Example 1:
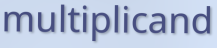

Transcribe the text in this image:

multiplicand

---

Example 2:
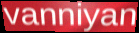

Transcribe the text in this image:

vanniyan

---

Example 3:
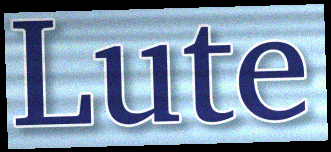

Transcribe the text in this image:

Lute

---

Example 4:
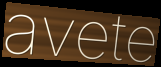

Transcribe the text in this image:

avete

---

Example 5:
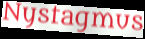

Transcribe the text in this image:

Nystagmus